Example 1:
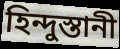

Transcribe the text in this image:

হিন্দুস্তানী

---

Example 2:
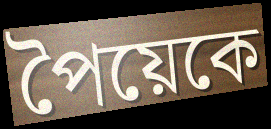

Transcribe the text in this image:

পৈয়েকে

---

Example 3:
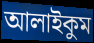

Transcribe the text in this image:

আলাইকুম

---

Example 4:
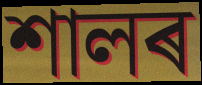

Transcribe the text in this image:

শালৰ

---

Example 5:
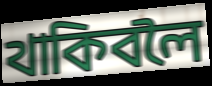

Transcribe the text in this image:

থাকিবলৈ